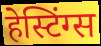
हेस्टिंग्स